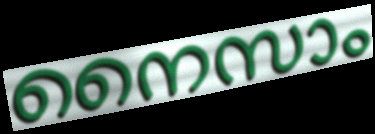
നൈസാം